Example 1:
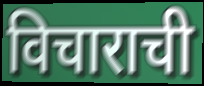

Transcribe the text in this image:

विचाराची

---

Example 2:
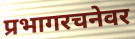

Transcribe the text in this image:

प्रभागरचनेवर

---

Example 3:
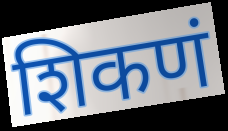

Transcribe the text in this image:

शिकणं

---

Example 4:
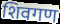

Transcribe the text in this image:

शिवगण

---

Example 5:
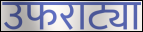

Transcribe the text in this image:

उफराट्या